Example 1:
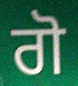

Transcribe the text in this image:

ਗੋ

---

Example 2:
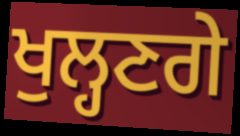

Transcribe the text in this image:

ਖੁਲ੍ਹਣਗੇ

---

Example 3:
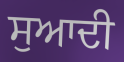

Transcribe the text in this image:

ਸੁਆਦੀ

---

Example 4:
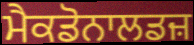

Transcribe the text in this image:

ਮੈਕਡੋਨਾਲਡਜ਼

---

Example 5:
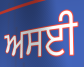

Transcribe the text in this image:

ਅਸਈ